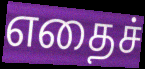
எதைச்